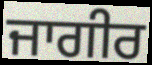
ਜਾਗੀਰ